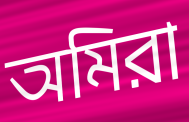
অমিরা